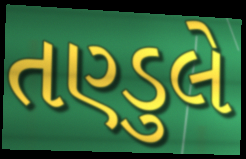
તણ્ડુલે